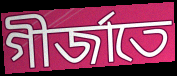
গীর্জাতে